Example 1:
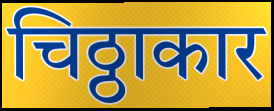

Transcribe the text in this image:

चिठ्ठाकार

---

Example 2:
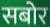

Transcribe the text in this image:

सबोर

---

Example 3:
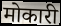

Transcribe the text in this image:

मोकारी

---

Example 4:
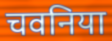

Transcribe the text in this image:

चवनिया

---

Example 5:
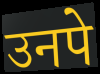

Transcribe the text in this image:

उनपे